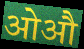
ओऔ